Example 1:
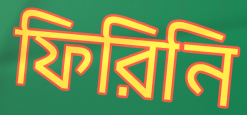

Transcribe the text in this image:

ফিরিনি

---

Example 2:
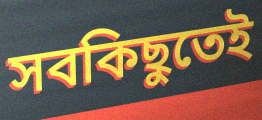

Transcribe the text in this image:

সবকিছুতেই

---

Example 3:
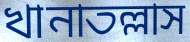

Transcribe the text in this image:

খানাতল্লাস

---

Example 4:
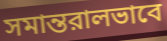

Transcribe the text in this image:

সমান্তরালভাবে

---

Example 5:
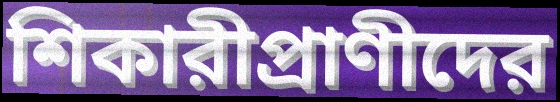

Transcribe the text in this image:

শিকারীপ্রাণীদের